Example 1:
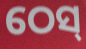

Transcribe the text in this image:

ଠେସ୍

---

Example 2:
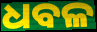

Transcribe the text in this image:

ଧବଳ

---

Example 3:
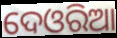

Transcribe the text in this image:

ଦେଓରିଆ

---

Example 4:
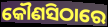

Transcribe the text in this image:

କୌଣସିଠାରେ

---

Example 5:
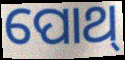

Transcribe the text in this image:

ପୋଥ୍